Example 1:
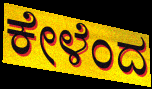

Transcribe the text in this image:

ಕೇಳೆಂದ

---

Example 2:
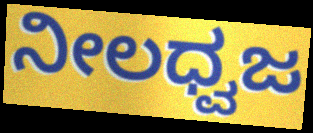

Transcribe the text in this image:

ನೀಲಧ್ವಜ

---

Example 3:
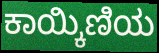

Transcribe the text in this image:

ಕಾಯ್ಕಿಣಿಯ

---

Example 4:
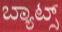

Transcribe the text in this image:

ಬ್ಯಾಟ್ಸ್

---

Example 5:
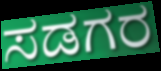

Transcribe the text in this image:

ಸಡಗರ